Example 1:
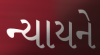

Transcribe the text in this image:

ન્યાયને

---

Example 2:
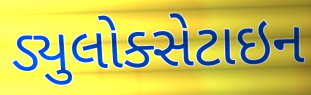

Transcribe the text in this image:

ડ્યુલોક્સેટાઇન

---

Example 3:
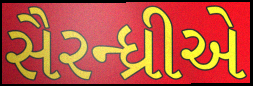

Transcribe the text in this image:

સૈરન્ધ્રીએ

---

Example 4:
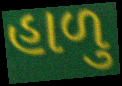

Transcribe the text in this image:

હાળુ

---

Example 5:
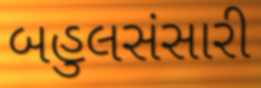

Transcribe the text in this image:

બહુલસંસારી